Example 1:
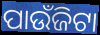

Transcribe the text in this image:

ପାଉଁଜିଟା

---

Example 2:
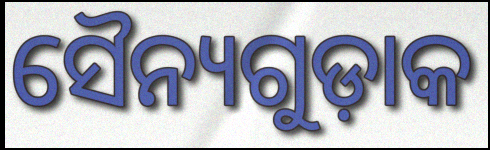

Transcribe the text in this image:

ସୈନ୍ୟଗୁଡ଼ାକ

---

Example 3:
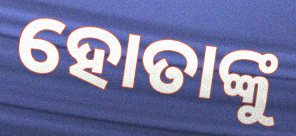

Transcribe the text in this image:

ହୋତାଙ୍କୁ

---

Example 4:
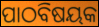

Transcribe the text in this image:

ପାଠବିଷୟକ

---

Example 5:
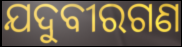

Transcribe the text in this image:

ଯଦୁବୀରଗଣ